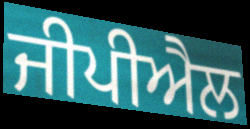
ਜੀਪੀਐਲ